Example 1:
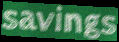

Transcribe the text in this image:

savings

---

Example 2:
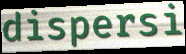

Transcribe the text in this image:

dispersi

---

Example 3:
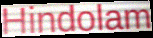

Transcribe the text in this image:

Hindolam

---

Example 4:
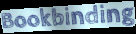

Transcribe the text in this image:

Bookbinding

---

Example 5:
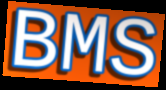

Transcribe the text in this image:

BMS